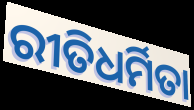
ରୀତିଧର୍ମିତା